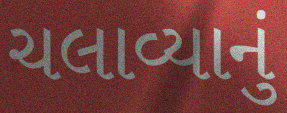
ચલાવ્યાનું